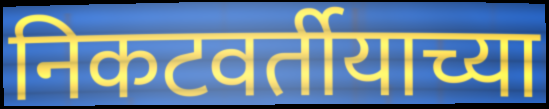
निकटवर्तीयाच्या